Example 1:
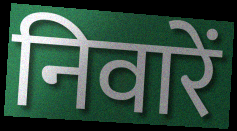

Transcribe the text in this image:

निवारें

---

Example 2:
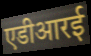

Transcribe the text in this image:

एडीआरई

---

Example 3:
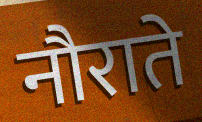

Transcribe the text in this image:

नौराते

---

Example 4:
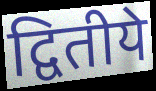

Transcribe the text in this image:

द्वितीये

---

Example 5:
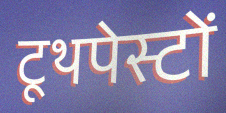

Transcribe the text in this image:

टूथपेस्टों